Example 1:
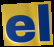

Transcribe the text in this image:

el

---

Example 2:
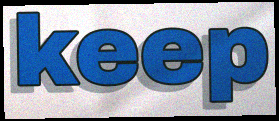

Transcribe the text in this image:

keep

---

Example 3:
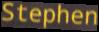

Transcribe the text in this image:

Stephen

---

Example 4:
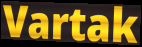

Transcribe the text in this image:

Vartak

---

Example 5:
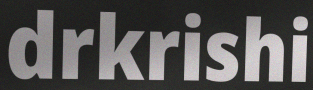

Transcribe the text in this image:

drkrishi